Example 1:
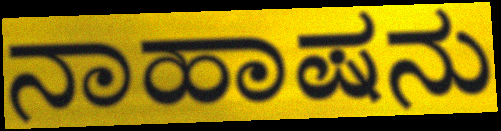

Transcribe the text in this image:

ನಾಹಾಷನು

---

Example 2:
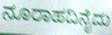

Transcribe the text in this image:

ನೂರಾಹದಿನೈದು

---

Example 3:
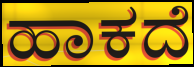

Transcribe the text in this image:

ಹಾಕದೆ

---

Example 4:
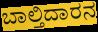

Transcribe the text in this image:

ಬಾಲ್ತಿದಾರನ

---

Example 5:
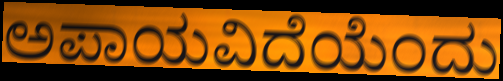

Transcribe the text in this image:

ಅಪಾಯವಿದೆಯೆಂದು